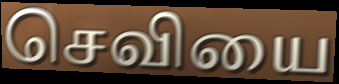
செவியை